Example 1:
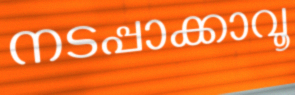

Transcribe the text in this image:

നടപ്പാക്കാവൂ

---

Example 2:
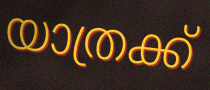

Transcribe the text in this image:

യാത്രക്ക്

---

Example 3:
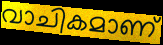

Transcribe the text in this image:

വാചികമാണ്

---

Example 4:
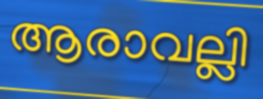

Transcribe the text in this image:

ആരാവല്ലി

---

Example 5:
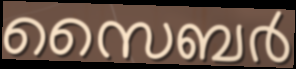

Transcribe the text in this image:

സൈബർ